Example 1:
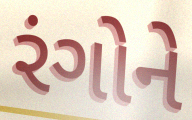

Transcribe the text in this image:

રંગોને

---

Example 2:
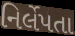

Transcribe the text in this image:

નિર્લેપતા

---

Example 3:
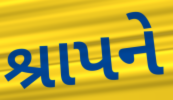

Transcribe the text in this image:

શ્રાપને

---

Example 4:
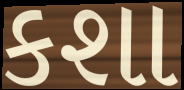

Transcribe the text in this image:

કશા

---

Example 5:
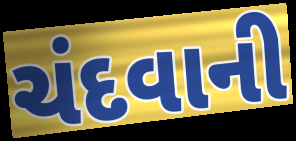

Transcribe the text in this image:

ચંદવાની